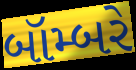
બૉમ્બરે